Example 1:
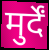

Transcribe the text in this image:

मुर्दें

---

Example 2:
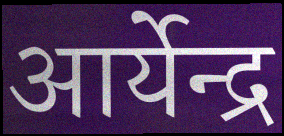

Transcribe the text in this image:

आर्येन्द्र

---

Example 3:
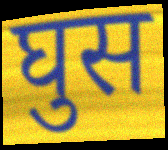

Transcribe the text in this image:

घुस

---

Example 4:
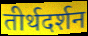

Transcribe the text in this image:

तीर्थदर्शन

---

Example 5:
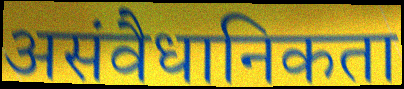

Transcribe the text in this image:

असंवैधानिकता